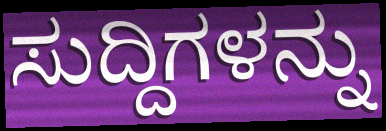
ಸುದ್ದಿಗಳನ್ನು